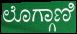
ಲೊಗ್ಗಾಣಿ